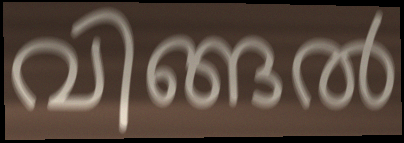
വിങ്ങൽ